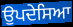
ਉਪਦੇਸਿਆ